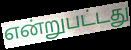
என்றுபட்டது